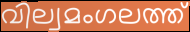
വില്വമംഗലത്ത്